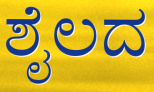
ಶೈಲದ